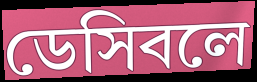
ডেসিবলে